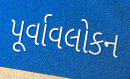
પૂર્વાવલોકન